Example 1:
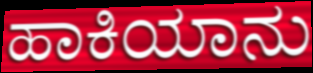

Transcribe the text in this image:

ಹಾಕಿಯಾನು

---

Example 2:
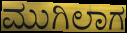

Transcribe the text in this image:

ಮುಗಿಲಾಗ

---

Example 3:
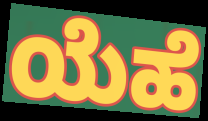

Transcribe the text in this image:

ಯೆಹೆ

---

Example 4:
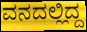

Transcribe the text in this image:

ವನದಲ್ಲಿದ್ದ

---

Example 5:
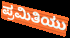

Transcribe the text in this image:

ಪ್ರಮಿತಿಯು